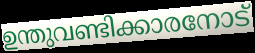
ഉന്തുവണ്ടിക്കാരനോട്